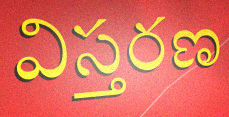
విస్తరణ